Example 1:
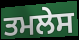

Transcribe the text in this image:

ਤਮਲੇਸ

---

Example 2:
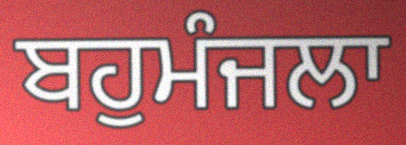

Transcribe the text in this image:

ਬਹੁਮੰਜਲਾ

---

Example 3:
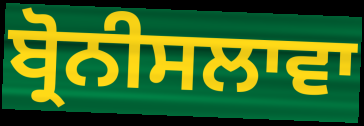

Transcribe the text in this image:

ਬ੍ਰੋਨੀਸਲਾਵਾ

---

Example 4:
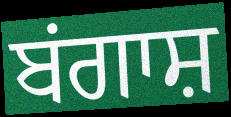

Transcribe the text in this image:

ਬਂਗਾਸ਼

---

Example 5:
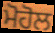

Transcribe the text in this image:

ਮੋਹੋਲ